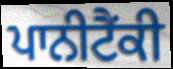
ਪਾਨੀਟੈਂਕੀ